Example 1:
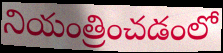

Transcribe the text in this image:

నియంత్రించడంలో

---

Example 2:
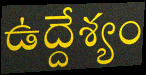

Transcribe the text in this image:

ఉద్దేశ్యం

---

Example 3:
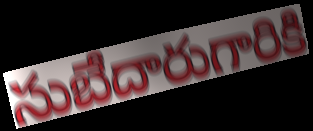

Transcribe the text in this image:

సుబేదారుగారికి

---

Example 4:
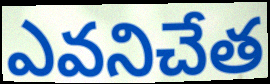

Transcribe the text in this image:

ఎవనిచేత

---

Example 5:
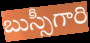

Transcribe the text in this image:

బుస్సీగారి